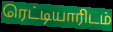
ரெட்டியாரிடம்